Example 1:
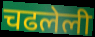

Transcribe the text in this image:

चढलेली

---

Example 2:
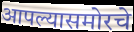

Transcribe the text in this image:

आपल्यासमोरचे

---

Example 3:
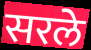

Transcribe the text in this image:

सरले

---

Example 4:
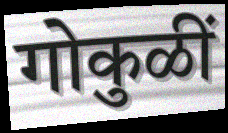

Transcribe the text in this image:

गोकुळीं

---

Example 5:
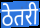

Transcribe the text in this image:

ठेतरी